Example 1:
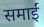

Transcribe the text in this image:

समाईं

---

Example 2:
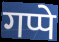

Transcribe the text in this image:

गप्पे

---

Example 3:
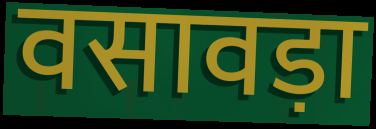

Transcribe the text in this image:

वसावड़ा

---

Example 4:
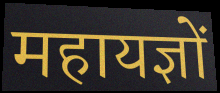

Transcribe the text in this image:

महायज्ञों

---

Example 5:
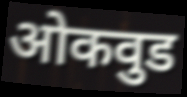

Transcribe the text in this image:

ओकवुड